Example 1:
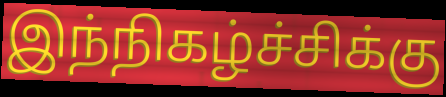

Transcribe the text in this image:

இந்நிகழ்ச்சிக்கு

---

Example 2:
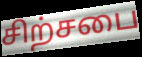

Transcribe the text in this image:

சிற்சபை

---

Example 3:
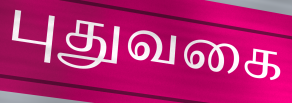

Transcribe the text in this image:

புதுவகை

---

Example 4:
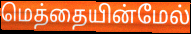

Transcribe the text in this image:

மெத்தையின்மேல்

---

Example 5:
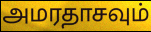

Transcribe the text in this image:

அமரதாசவும்